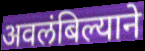
अवलंबिल्याने